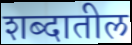
शब्दातील